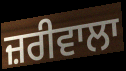
ਜ਼ਰੀਵਾਲਾ